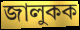
জালুকক